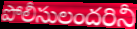
పోలీసులందరినీ